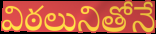
విఠలునితోనే